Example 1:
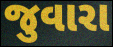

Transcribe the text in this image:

જુવારા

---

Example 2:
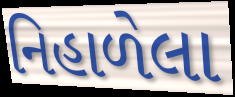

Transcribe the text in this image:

નિહાળેલા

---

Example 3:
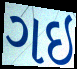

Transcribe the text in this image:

ગઇ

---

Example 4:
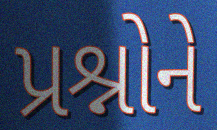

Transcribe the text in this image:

પ્રશ્નોને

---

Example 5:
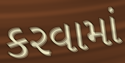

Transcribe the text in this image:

કરવામાં